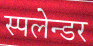
स्पलेन्डर